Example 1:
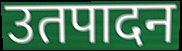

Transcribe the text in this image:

उतपादन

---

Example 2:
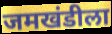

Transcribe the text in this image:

जमखंडीला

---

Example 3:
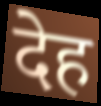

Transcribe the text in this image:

देह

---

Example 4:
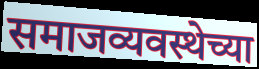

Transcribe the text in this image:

समाजव्यवस्थेच्या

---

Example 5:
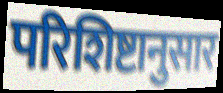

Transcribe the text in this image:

परिशिष्टानुसार